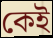
কেই